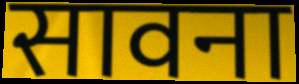
सावना